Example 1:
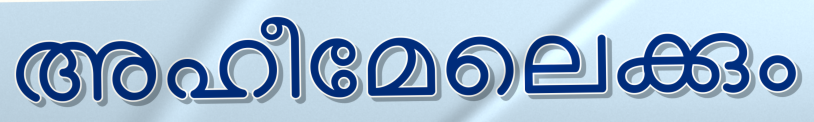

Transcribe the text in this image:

അഹീമേലെക്കും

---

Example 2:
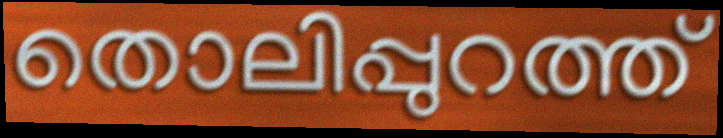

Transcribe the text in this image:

തൊലിപ്പുറത്ത്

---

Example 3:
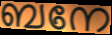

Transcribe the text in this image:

ബനേ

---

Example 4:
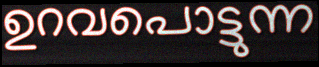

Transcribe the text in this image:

ഉറവപൊട്ടുന്ന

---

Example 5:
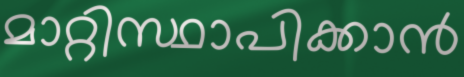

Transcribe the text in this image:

മാറ്റിസ്ഥാപിക്കാൻ